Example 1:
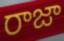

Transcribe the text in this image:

రాజా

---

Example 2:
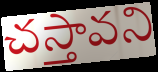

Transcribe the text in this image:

చస్తావని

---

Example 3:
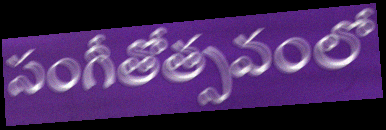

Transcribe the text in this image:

సంగీతోత్సవంలో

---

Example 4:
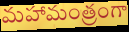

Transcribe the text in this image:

మహామంత్రంగా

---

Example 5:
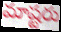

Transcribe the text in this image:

మాష్టరు